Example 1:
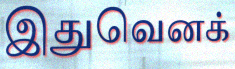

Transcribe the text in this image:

இதுவெனக்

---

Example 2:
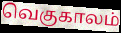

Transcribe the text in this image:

வெகுகாலம்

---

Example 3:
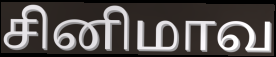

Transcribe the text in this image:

சினிமாவ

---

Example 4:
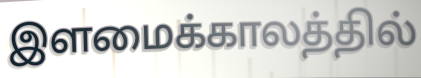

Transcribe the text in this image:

இளமைக்காலத்தில்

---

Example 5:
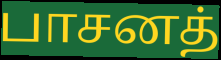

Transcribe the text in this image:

பாசனத்